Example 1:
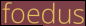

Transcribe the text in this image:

foedus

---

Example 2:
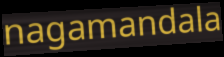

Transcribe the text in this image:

nagamandala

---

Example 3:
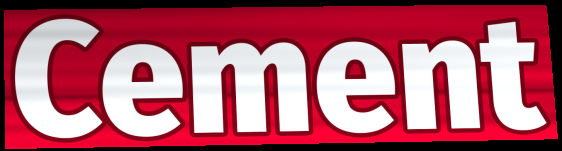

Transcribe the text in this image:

Cement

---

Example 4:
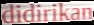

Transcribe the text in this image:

didirikan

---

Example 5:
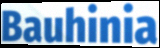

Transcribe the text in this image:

Bauhinia